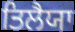
ਤਿਲੈਯਾ